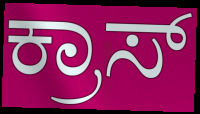
ಕ್ರಾಸ್